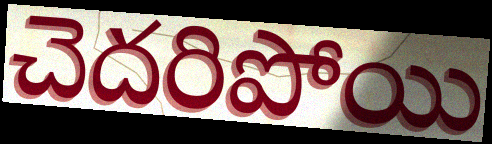
చెదరిపోయి